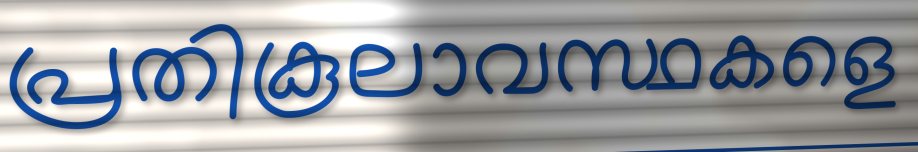
പ്രതികൂലാവസ്ഥകളെ